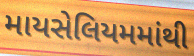
માયસેલિયમમાંથી